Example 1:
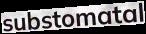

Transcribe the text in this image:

substomatal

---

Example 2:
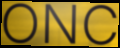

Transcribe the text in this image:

ONC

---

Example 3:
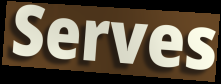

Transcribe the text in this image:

Serves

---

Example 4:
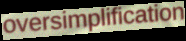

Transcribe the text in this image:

oversimplification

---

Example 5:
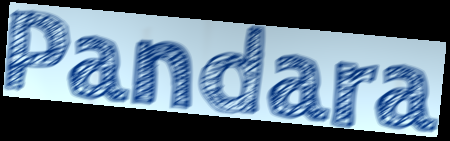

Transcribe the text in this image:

Pandara